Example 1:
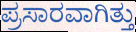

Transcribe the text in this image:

ಪ್ರಸಾರವಾಗಿತ್ತು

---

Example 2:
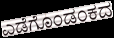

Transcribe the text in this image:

ಎಡೆಗೊಂಡಂಕದ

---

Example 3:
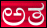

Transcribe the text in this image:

ಅತ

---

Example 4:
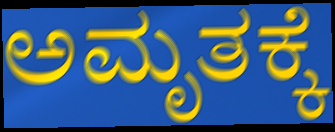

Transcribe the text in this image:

ಅಮೃತಕ್ಕೆ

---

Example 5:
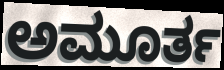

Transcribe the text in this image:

ಅಮೂರ್ತ